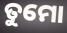
ତୁମୋ